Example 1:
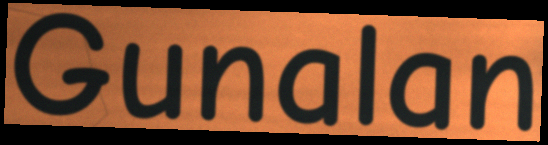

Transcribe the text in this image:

Gunalan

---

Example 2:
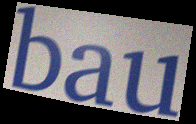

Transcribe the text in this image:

bau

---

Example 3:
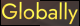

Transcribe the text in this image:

Globally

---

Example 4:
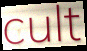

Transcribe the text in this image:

cult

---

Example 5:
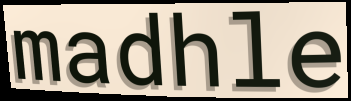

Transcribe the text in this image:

madhle